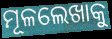
ମୂଳଲେଖାକୁ